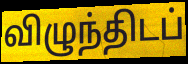
விழுந்திடப்